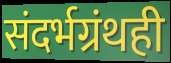
संदर्भग्रंथही